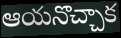
ఆయనొచ్చాక